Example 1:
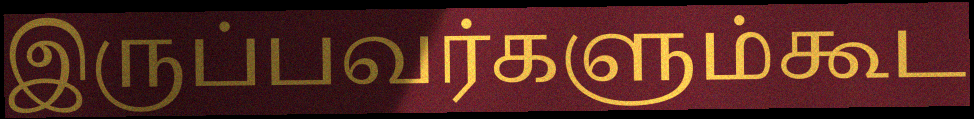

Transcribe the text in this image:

இருப்பவர்களும்கூட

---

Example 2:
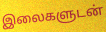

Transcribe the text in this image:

இலைகளுடன்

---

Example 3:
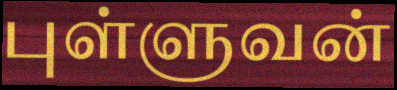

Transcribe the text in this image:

புள்ளுவன்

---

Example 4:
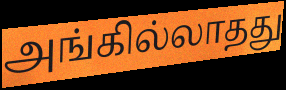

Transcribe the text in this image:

அங்கில்லாதது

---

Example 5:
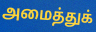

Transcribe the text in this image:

அமைத்துக்